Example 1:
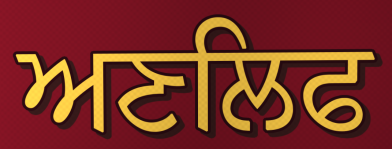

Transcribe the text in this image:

ਅਣਲਿਫ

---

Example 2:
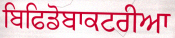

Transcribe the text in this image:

ਬਿਫਿਡੋਬਾਕਟਰੀਆ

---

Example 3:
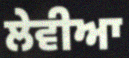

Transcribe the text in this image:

ਲੇਵੀਆ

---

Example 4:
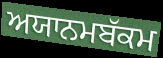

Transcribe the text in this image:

ਅਯਾਨਮਬੱਕਮ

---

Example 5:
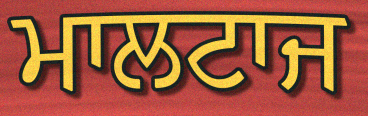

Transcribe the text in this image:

ਮਾਲਟਾਜ